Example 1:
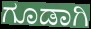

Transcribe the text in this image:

ಗೂಡಾಗಿ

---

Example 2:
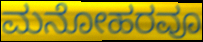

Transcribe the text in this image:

ಮನೋಹರವೂ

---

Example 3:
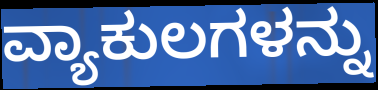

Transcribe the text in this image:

ವ್ಯಾಕುಲಗಳನ್ನು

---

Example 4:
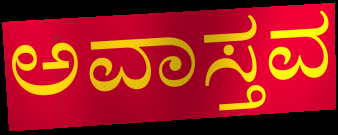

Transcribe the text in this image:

ಅವಾಸ್ತವ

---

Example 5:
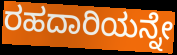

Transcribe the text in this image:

ರಹದಾರಿಯನ್ನೇ